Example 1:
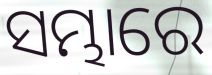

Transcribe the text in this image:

ସମ୍ଭାରେ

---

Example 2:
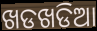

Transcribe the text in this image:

ଖଡଖଡିଆ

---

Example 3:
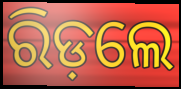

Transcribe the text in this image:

ରିଡ଼ଲେ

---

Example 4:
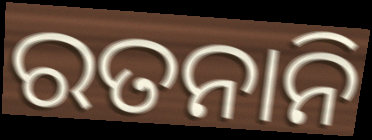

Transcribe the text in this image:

ରତନାନି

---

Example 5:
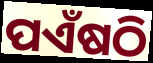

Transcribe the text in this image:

ପଏଁଷଠି